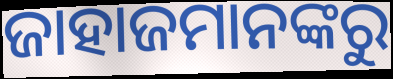
ଜାହାଜମାନଙ୍କରୁ